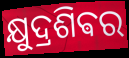
କ୍ଷୁଦ୍ରଶିଵର